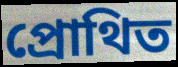
প্রোথিত